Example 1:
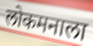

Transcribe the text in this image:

लोकमनाला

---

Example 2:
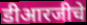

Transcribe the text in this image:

डीआरजीचे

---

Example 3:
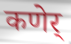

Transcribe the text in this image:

कणेर्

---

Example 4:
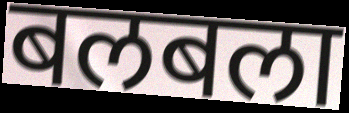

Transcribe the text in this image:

बलबला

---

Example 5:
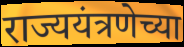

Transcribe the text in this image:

राज्ययंत्रणेच्या